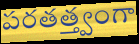
పరతత్త్వంగా